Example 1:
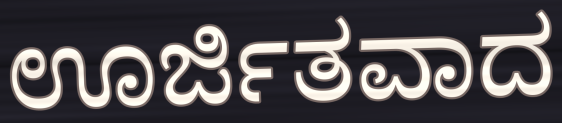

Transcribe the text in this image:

ಊರ್ಜಿತವಾದ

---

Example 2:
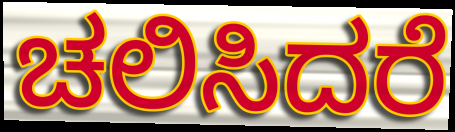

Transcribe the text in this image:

ಚಲಿಸಿದರೆ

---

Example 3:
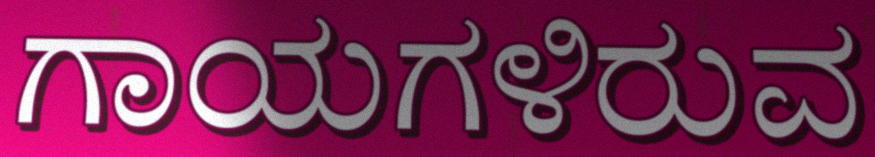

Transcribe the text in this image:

ಗಾಯಗಳಿರುವ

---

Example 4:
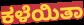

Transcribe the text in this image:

ಕಳೆಯಿತಾ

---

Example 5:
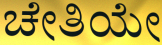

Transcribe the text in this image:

ಚೇತಿಯೇ